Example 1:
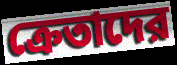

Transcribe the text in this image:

ক্রেতাদের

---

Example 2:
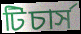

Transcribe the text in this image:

টিচার্স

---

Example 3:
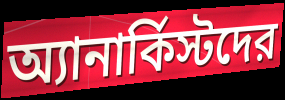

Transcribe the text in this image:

অ্যানার্কিস্টদের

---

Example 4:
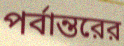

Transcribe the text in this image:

পর্বান্তরের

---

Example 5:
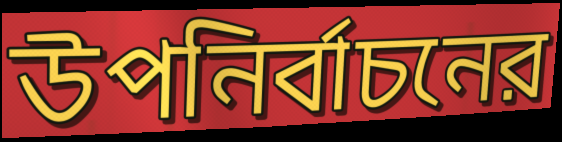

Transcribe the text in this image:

উপনির্বাচনের